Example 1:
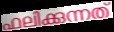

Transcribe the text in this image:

ഫലിക്കുന്നത്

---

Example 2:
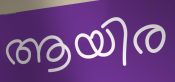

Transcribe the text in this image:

ആയിര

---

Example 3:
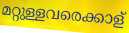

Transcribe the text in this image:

മറ്റുള്ളവരെക്കാള്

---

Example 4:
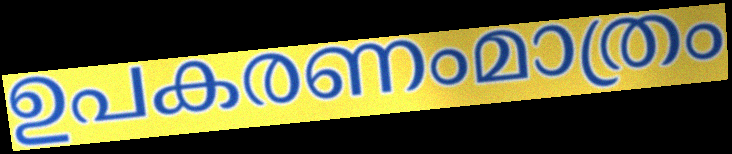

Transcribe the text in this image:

ഉപകരണംമാത്രം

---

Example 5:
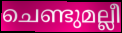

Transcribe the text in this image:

ചെണ്ടുമല്ലീ